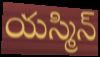
యస్మిన్